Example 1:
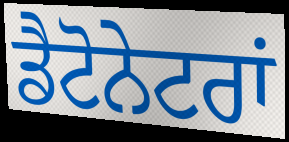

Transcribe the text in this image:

ਡੈਟੋਨੇਟਰਾਂ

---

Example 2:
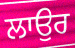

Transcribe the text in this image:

ਲਾਉਰ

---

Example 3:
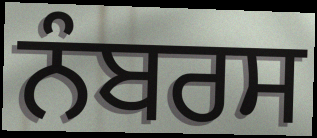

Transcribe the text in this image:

ਨੰਬਰਸ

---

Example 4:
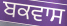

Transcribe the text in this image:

ਬਕਵਾਸ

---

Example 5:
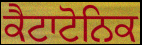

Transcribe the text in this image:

ਕੈਟਾਟੋਨਿਕ